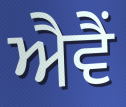
ਐਵੈਂ